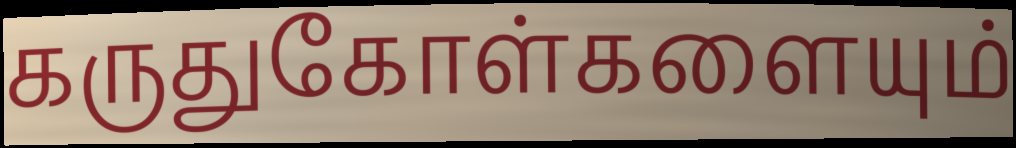
கருதுகோள்களையும்